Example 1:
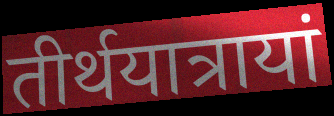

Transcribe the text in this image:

तीर्थयात्रायां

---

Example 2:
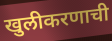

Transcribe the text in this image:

खुलीकरणाची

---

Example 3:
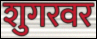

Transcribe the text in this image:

शुगरवर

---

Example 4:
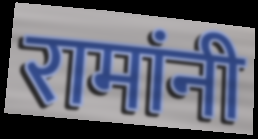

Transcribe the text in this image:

रामांनी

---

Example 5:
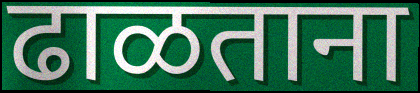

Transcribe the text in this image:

ढाळताना